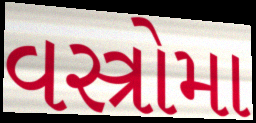
વસ્ત્રોમા